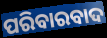
ପରିବାରବାଦ